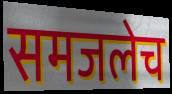
समजलेच